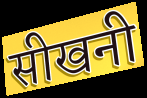
सीखनी